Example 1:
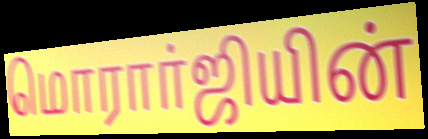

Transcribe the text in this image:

மொரார்ஜியின்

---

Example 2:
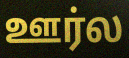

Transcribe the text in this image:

ஊர்ல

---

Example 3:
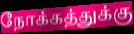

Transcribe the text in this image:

நோக்கத்துக்கு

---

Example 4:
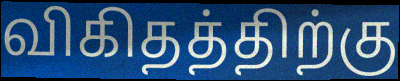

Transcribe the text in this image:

விகிதத்திற்கு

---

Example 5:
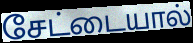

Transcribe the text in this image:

சேட்டையால்